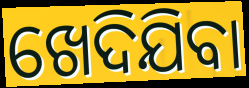
ଖେଦିଯିବା